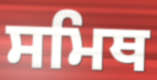
ਸਮਿਥ